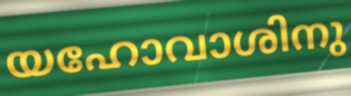
യഹോവാശിനു